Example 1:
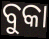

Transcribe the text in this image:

ବୁକା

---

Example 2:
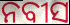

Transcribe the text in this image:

ନବୀସ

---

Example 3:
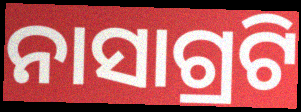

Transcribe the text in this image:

ନାସାଗ୍ରଟି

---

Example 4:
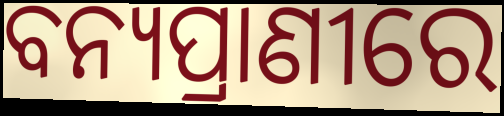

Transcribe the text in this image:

ବନ୍ୟପ୍ରାଣୀରେ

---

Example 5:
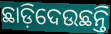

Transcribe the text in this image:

ଛାଡ଼ିଦେଉଛନ୍ତି